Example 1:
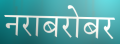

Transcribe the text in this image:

नराबरोबर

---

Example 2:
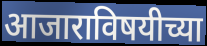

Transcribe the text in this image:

आजाराविषयीच्या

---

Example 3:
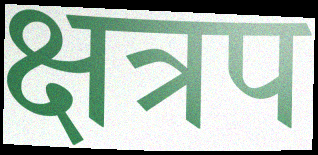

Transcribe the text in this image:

क्षत्रप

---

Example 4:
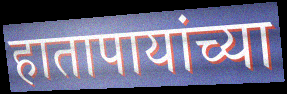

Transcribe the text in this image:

हातापायांच्या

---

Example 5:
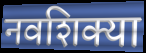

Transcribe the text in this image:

नवशिक्या